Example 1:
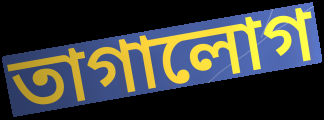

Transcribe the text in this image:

তাগালোগ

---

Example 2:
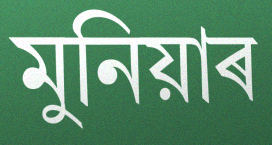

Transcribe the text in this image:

মুনিয়াৰ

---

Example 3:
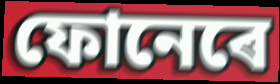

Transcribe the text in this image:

ফোনেৰে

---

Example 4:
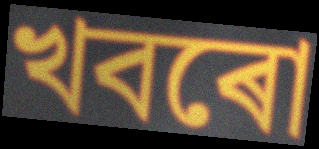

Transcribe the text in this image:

খবৰো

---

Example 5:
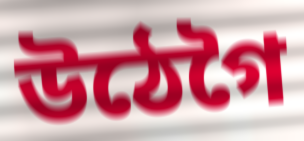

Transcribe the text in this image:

উঠেগৈ